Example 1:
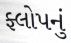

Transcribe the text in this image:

ફ્લોપનું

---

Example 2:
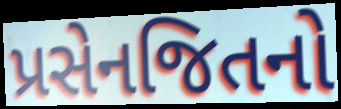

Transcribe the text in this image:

પ્રસેનજિતનો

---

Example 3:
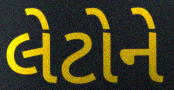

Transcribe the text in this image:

લેટોને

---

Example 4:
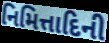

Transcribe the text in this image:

નિમિત્તાદિની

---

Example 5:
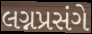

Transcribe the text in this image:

લગ્નપ્રસંગે